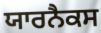
ਯਾਰਨੈਕਸ